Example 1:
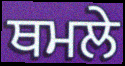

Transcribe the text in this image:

ਥਮਲੇ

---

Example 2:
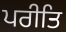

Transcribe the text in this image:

ਪਰੀਤਿ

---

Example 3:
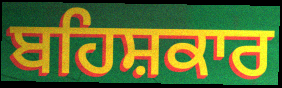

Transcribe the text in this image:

ਬਹਿਸ਼ਕਾਰ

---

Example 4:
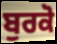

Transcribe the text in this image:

ਬੁਰਕੋ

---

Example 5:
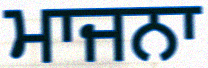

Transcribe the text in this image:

ਮਾਜਨਾ